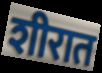
शीरात